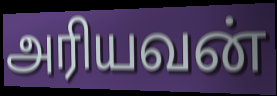
அரியவன்